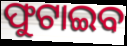
ଫୁଟାଇବ